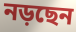
নড়ছেন